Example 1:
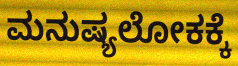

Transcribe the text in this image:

ಮನುಷ್ಯಲೋಕಕ್ಕೆ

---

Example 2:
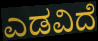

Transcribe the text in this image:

ಎಡವಿದೆ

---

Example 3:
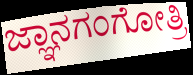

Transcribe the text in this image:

ಜ್ಞಾನಗಂಗೋತ್ರಿ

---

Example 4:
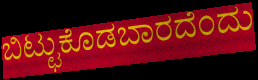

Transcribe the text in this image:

ಬಿಟ್ಟುಕೊಡಬಾರದೆಂದು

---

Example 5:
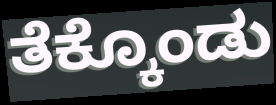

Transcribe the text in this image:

ತೆಕ್ಕೊಂಡು